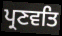
ਪ੍ਰਣਵਤਿ